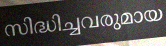
സിദ്ധിച്ചവരുമായ